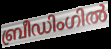
ബ്രീഡിംഗിൽ